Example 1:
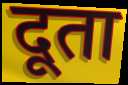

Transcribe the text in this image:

दूता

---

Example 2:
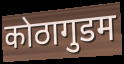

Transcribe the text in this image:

कोठागुडम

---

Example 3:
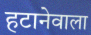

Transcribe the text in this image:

हटानेवाला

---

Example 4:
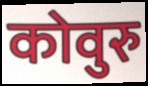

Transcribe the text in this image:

कोवुरु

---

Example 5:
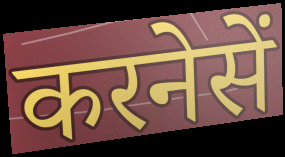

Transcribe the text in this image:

करनेसें